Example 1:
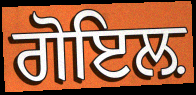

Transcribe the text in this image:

ਗੋਇਲ਼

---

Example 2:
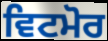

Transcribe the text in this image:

ਵਿਟਮੋਰ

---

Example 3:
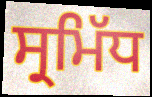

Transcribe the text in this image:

ਸ੍ਰਮਿੱਧ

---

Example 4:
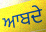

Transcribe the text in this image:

ਆਬਦੇ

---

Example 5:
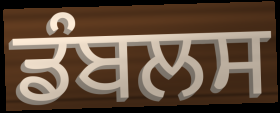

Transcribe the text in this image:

ਡੰਬਲਸ